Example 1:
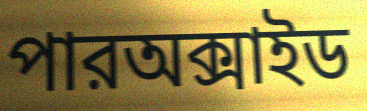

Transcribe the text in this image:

পারঅক্সাইড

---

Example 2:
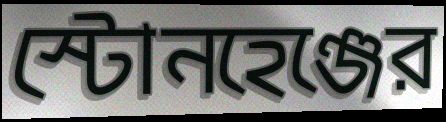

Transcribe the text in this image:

স্টোনহেঞ্জের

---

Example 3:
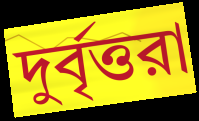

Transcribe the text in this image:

দুর্বৃত্তরা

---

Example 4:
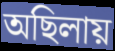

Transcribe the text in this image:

অছিলায়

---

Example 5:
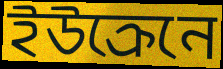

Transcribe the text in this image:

ইউক্রেনে